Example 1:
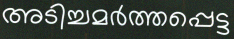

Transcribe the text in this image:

അടിച്ചമർത്തപ്പെട്ട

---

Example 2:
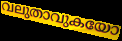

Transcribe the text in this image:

വലുതാവുകയോ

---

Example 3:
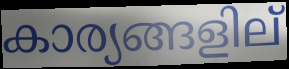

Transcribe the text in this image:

കാര്യങ്ങളില്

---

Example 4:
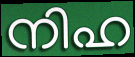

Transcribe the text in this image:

നിഹ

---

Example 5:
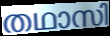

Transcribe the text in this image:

തഥാസി